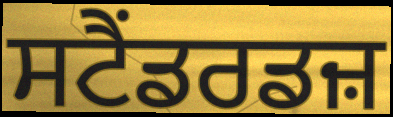
ਸਟੈਂਡਰਡਜ਼